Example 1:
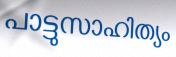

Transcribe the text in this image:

പാട്ടുസാഹിത്യം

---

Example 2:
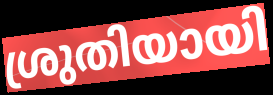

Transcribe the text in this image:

ശ്രുതിയായി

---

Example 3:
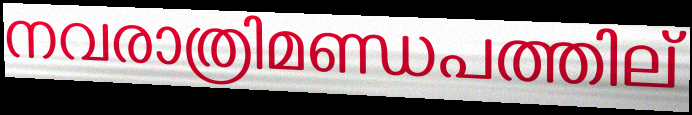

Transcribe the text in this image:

നവരാത്രിമണ്ഡപത്തില്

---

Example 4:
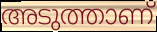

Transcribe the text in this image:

അടുത്താണ്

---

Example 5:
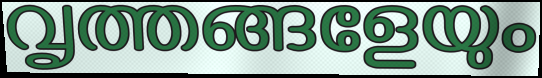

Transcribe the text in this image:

വൃത്തങ്ങളേയും